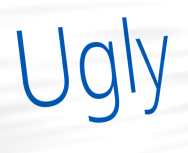
Ugly